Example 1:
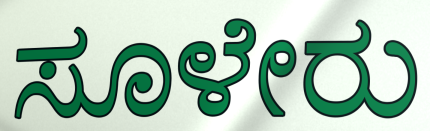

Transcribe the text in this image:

ಸೂಳೇರು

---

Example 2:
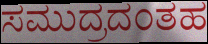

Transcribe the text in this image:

ಸಮುದ್ರದಂತಹ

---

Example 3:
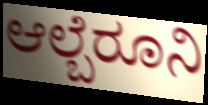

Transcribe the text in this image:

ಆಲ್ಬೆರೂನಿ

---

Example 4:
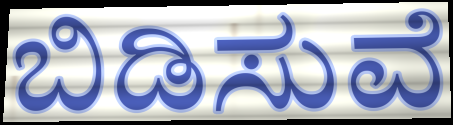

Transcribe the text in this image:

ಬಿಡಿಸುವೆ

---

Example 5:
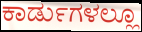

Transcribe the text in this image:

ಕಾರ್ಡುಗಳಲ್ಲೂ